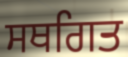
ਸਥਗਿਤ